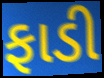
ફાડી